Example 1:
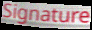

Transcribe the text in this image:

Signature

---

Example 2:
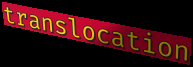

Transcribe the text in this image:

translocation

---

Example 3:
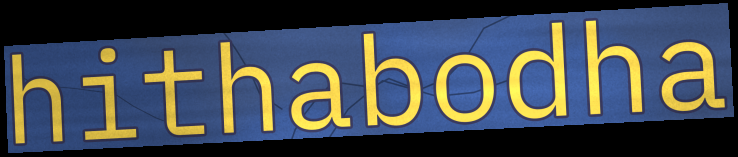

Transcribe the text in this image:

hithabodha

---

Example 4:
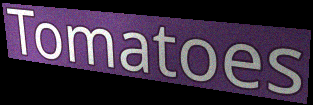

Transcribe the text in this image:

Tomatoes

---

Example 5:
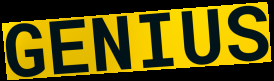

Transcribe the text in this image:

GENIUS